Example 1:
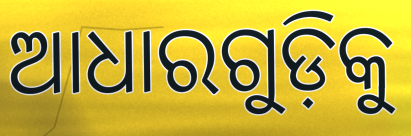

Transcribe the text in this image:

ଆଧାରଗୁଡ଼ିକୁ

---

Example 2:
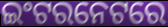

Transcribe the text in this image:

ଇଂଟରନେଟରେ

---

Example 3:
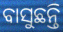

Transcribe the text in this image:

ବାସୁଛନ୍ତି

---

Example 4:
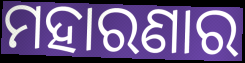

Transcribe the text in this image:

ମହାରଣାର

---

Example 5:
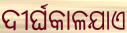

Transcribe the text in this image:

ଦୀର୍ଘକାଳଯାଏ